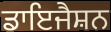
ਡਾਇਜੈਸ਼ਨ